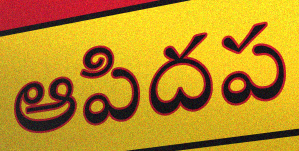
ఆపిదప